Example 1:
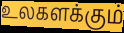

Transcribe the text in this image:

உலகளக்கும்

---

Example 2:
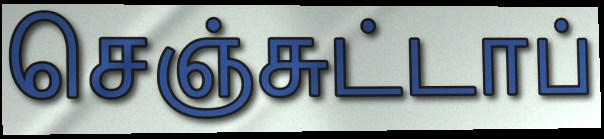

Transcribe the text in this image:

செஞ்சுட்டாப்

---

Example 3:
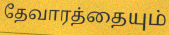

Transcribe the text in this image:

தேவாரத்தையும்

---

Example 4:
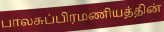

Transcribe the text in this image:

பாலசுப்பிரமணியத்தின்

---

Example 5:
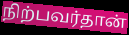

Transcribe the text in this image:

நிற்பவர்தான்